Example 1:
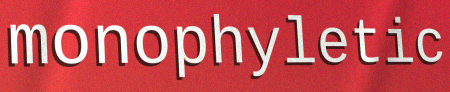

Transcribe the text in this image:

monophyletic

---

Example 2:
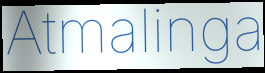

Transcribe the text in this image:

Atmalinga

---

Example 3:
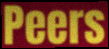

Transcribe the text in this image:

Peers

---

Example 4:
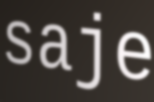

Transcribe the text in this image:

saje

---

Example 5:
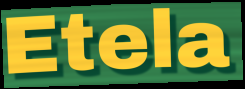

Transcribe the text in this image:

Etela